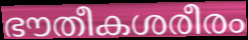
ഭൗതീകശരീരം